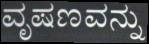
ವೃಷಣವನ್ನು